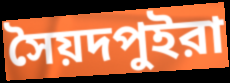
সৈয়দপুইরা